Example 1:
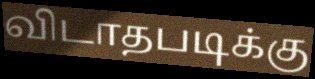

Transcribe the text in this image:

விடாதபடிக்கு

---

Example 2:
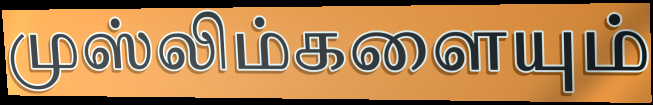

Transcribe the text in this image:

முஸ்லிம்களையும்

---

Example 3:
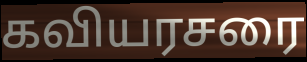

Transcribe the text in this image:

கவியரசரை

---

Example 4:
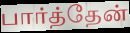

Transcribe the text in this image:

பார்த்தேன்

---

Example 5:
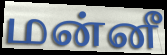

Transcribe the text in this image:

மன்னீ